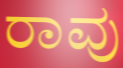
ರಾವು